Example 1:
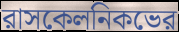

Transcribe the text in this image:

রাসকেলনিকভের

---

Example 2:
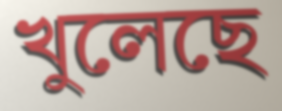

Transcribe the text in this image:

খুলেছে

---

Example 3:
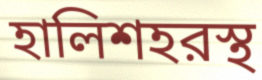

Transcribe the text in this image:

হালিশহরস্থ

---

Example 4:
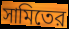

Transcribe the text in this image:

সামিতের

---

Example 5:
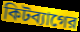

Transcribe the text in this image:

কিটব্যাগের